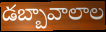
డబ్బావాలాల